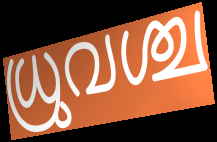
ധ്രുവശ്ച